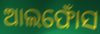
ଆଲଫୋଁସ